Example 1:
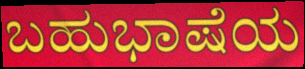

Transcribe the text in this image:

ಬಹುಭಾಷೆಯ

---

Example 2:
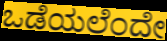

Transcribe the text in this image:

ಒಡೆಯಲೆಂದೇ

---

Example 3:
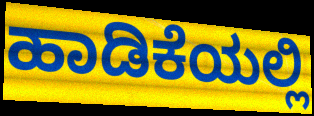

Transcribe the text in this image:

ಹಾಡಿಕೆಯಲ್ಲಿ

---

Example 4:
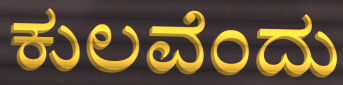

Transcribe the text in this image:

ಕುಲವೆಂದು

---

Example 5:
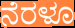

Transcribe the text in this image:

ನೆರಳೂ